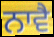
ਨਾਵੈ